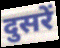
दुसरें